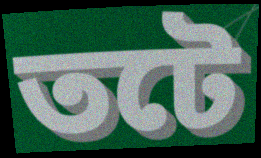
তটে